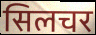
सिलचर